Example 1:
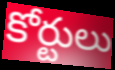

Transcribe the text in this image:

కోర్టులు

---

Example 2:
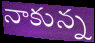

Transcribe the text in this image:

నాకున్న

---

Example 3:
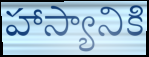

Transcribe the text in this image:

హాస్యానికి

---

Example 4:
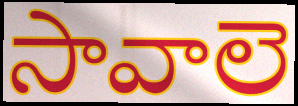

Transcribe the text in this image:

సావాలె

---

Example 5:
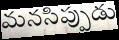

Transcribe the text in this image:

మనసిప్పుడు